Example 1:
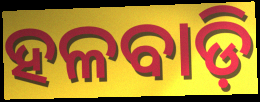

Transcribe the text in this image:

ହଳବାଡ଼ି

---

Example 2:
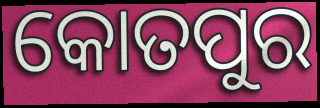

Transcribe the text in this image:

କୋତପୁର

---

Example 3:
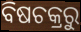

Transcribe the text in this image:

ବିଷଚକ୍ରରୁ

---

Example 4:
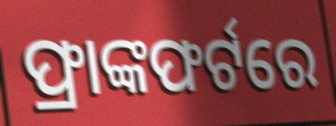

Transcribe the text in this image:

ଫ୍ରାଙ୍କଫର୍ଟରେ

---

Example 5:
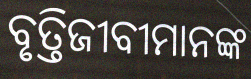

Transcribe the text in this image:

ବୃତ୍ତିଜୀବୀମାନଙ୍କ